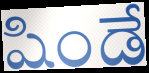
షిండే